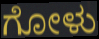
ಗೋಳು